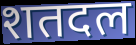
शतदल